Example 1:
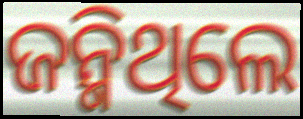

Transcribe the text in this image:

ଜନ୍ମିଥିଲେ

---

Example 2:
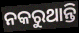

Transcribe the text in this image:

ନକରୁଥାନ୍ତି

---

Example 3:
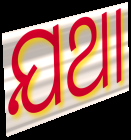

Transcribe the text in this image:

ଯଥା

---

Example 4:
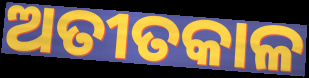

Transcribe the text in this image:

ଅତୀତକାଳ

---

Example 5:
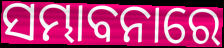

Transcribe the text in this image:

ସମ୍ଭାବନାରେ